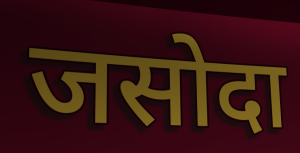
जसोदा